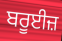
ਬਰੂਈਜ਼